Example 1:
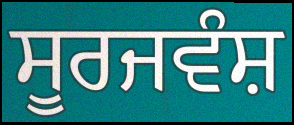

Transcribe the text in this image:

ਸੂਰਜਵੰਸ਼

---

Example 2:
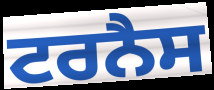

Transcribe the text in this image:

ਟਰਨੈਸ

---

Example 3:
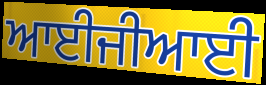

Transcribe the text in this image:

ਆਈਜੀਆਈ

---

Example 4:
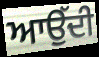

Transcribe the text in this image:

ਆਉੱਦੀ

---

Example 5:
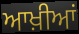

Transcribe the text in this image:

ਆਖ਼ੀਆਂ